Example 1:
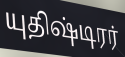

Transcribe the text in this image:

யுதிஷ்டிரர்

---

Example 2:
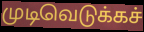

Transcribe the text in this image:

முடிவெடுக்கச்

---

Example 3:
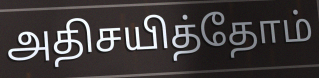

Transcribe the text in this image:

அதிசயித்தோம்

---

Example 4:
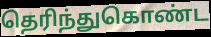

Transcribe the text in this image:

தெரிந்துகொண்ட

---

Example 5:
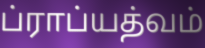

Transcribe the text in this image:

ப்ராப்யத்வம்